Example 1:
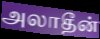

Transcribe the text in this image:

அலாதீன்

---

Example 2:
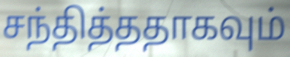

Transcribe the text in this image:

சந்தித்ததாகவும்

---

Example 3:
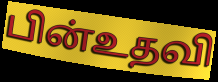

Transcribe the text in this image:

பின்உதவி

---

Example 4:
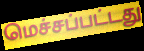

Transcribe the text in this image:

மெச்சப்பட்டது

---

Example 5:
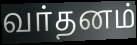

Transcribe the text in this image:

வர்தனம்